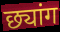
छ्यांग